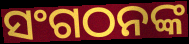
ସଂଗଠନଙ୍କ